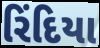
રિંદિયા